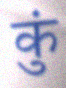
कुं